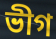
ভীগ